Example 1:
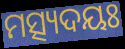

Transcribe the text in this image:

ମତ୍ସ୍ୟଦୟଃ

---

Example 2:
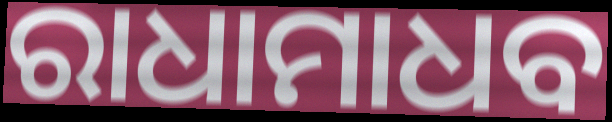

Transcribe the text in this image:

ରାଧାମାଧବ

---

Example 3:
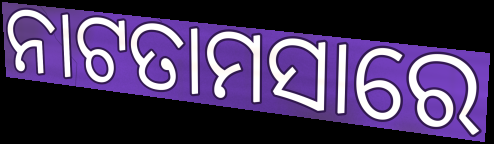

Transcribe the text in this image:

ନାଟତାମସାରେ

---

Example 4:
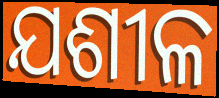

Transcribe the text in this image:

ଯଶୀଳ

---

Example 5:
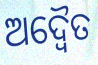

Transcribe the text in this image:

ଅଦ୍ୱୈତ